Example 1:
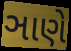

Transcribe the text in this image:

ઞાણે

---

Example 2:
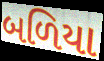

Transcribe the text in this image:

બળિયા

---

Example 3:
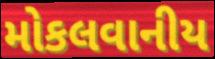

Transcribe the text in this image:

મોકલવાનીય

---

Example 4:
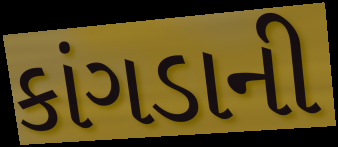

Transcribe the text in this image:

કાંગડાની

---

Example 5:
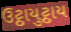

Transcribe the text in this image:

ઉટ્ઠાયુટ્ઠાય